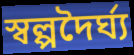
স্বল্পদৈর্ঘ্য